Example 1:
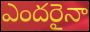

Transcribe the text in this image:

ఎందరైనా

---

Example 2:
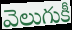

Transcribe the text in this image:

వెలుగుకీ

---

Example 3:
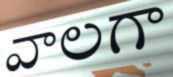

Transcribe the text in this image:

వాలగా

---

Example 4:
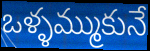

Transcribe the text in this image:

ఒళ్ళమ్ముకునే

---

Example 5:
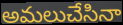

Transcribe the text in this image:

అమలుచేసినా